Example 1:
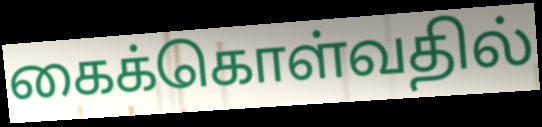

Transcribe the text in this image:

கைக்கொள்வதில்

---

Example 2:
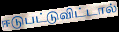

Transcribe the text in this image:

ஈடுபட்டுவிட்டால்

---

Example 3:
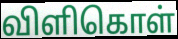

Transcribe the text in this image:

விளிகொள்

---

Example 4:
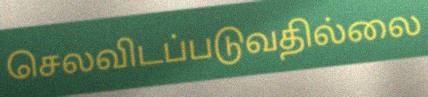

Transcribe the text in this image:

செலவிடப்படுவதில்லை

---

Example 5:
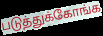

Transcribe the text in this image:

படுத்துக்கோங்க